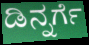
ಡಿನ್ನರ್ಗೆ